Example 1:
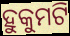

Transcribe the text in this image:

ହୁକୁମଟି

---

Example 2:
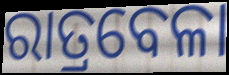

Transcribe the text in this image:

ରାତ୍ରବେଳା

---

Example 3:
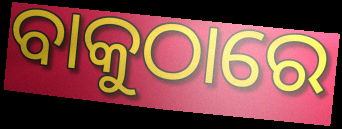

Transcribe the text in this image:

ବାକୁଠାରେ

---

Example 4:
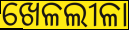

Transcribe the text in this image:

ଖେଳଲୀଳା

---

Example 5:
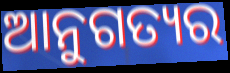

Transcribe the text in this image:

ଆନୁଗତ୍ୟର